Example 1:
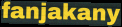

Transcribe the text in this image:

fanjakany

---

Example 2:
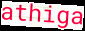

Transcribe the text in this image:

athiga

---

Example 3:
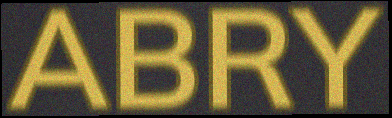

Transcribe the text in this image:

ABRY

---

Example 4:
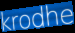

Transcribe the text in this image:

krodhe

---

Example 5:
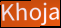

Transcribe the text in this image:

Khoja